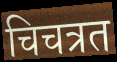
चिचत्रत